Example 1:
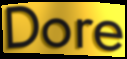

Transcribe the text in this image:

Dore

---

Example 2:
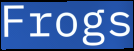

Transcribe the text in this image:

Frogs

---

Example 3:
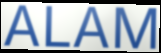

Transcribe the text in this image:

ALAM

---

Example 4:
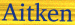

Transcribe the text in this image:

Aitken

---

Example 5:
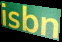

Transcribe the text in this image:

isbn